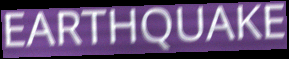
EARTHQUAKE